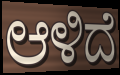
ಆಳಿದೆ